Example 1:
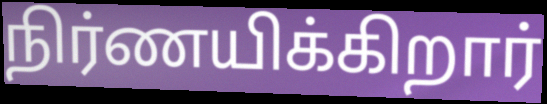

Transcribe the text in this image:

நிர்ணயிக்கிறார்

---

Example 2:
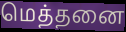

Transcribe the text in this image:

மெத்தனை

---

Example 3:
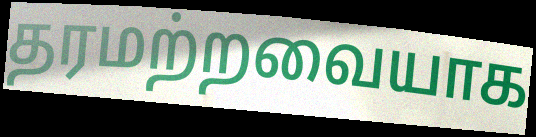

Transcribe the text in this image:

தரமற்றவையாக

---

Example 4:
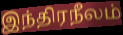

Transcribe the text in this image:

இந்திரநீலம்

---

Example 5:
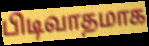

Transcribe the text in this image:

பிடிவாதமாக